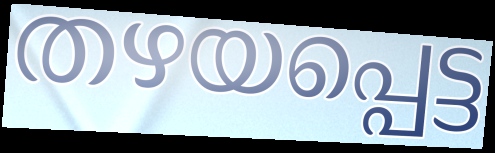
തഴയപ്പെട്ട